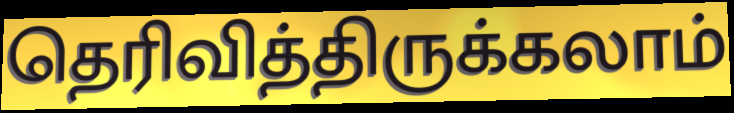
தெரிவித்திருக்கலாம்